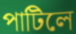
পাটিলে